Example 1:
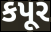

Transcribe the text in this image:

કપૂર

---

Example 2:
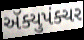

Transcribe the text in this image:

ઍક્યુપંક્ચર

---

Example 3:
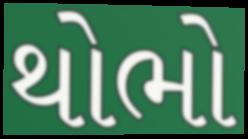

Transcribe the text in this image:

થોભો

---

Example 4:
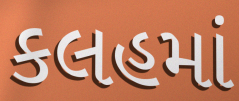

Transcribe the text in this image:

કલહમાં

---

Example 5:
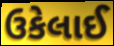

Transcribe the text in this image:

ઉકેલાઈ